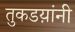
तुकडय़ांनी